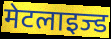
मेटलाइज्ड